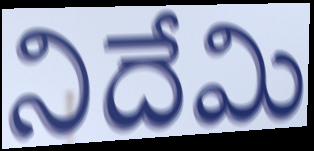
నిదేమి